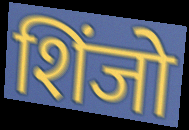
शिंजो